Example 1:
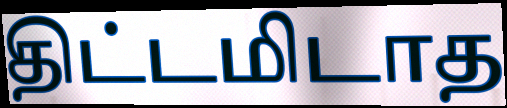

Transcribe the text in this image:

திட்டமிடாத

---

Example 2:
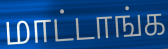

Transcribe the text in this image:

மாட்டாங்க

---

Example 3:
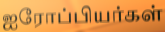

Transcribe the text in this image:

ஐரோப்பியர்கள்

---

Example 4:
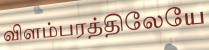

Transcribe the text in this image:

விளம்பரத்திலேயே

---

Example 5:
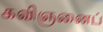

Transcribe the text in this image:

கவிஞனைப்